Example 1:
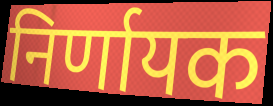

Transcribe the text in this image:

निर्णायक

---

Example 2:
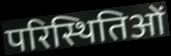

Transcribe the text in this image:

परिस्थितिओं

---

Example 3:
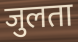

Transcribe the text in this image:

जुलता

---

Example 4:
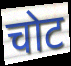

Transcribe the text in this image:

चोट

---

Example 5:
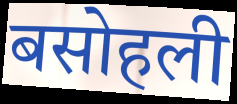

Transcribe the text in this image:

बसोहली